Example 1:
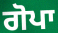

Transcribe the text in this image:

ਗੋਪਾ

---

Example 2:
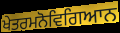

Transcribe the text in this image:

ਖੇਤਰਮਨੋਵਿਗਿਆਨ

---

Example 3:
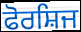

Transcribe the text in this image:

ਫੋਰਸ਼ਿਜ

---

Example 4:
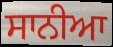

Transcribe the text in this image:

ਸਾਨੀਆ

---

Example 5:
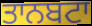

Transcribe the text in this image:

ਤਾਨਬਟਾ